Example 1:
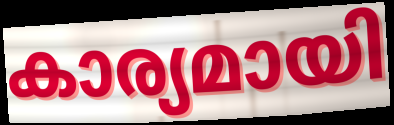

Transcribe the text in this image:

കാര്യമായി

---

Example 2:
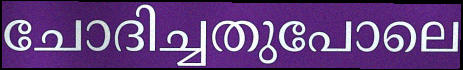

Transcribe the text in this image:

ചോദിച്ചതുപോലെ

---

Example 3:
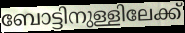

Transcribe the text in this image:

ബോട്ടിനുള്ളിലേക്ക്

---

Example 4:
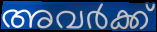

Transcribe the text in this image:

അവർക്ക്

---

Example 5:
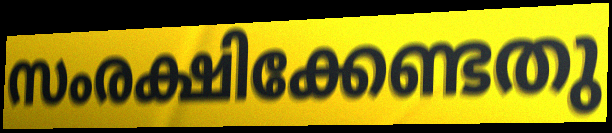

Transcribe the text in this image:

സംരക്ഷിക്കേണ്ടതു